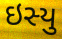
ઇસ્યુ